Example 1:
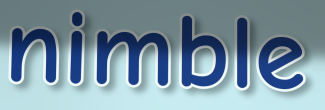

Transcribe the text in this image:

nimble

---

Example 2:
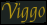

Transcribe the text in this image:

Viggo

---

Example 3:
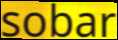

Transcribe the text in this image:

sobar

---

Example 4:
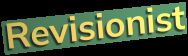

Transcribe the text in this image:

Revisionist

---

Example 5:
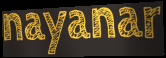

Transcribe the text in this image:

nayanar